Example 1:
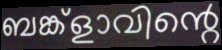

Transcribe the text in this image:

ബങ്ക്ളാവിന്റെ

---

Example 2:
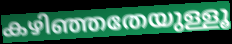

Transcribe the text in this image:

കഴിഞ്ഞതേയുള്ളൂ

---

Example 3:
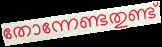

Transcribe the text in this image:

തോന്നേണ്ടതുണ്ട്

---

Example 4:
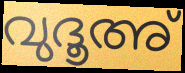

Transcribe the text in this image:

വുദൂഅ്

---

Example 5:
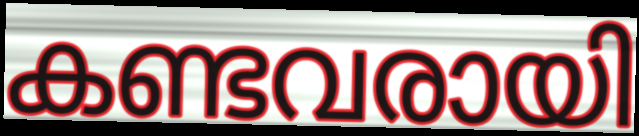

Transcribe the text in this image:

കണ്ടവരായി